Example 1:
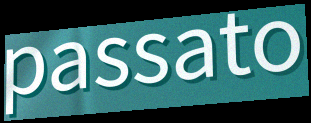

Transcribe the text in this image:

passato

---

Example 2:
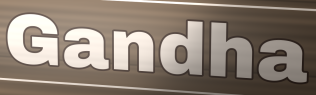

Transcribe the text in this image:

Gandha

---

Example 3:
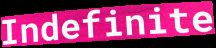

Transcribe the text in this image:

Indefinite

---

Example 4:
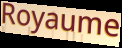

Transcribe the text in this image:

Royaume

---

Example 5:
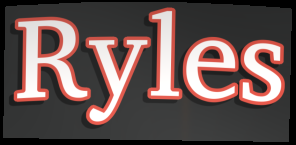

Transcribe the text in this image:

Ryles